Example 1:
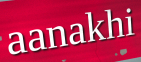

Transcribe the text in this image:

aanakhi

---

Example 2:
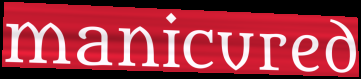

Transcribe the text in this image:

manicured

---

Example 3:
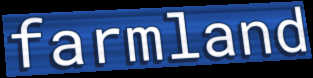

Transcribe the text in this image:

farmland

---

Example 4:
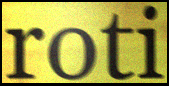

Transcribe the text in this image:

roti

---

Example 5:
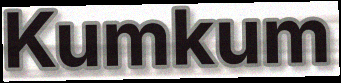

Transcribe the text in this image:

Kumkum